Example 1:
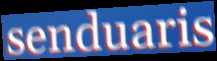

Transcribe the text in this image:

senduaris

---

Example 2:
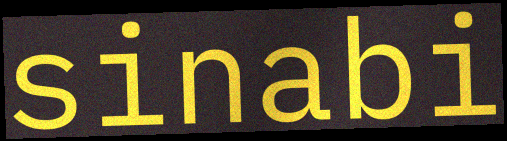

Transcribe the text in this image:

sinabi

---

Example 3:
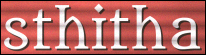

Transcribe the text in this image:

sthitha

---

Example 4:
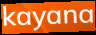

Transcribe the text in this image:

kayana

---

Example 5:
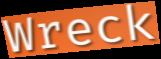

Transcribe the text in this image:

Wreck